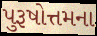
પુરૂષોત્તમના